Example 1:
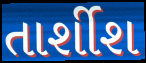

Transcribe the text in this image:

તાર્શીશ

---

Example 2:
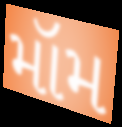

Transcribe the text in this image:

મૉમ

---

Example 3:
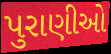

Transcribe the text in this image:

પુરાણીઓ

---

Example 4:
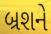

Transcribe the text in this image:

બ્રશને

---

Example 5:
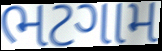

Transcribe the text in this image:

ભટગામ